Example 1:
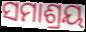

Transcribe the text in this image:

ସମାଶ୍ରୟ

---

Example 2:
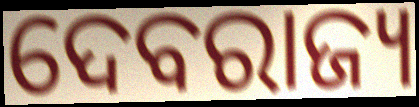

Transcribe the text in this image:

ଦେବରାଜ୍ୟ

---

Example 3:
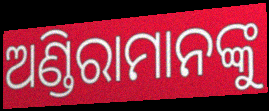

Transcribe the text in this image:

ଅଣ୍ଡିରାମାନଙ୍କୁ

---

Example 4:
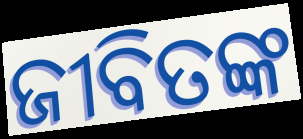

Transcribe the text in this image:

ଜୀବିତଙ୍କ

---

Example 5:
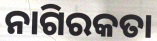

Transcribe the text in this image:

ନାଗିରକତା